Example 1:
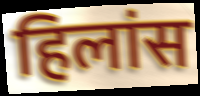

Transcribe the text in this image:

हिलांस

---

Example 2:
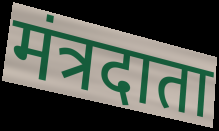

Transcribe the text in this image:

मंत्रदाता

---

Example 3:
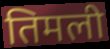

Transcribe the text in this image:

तिमली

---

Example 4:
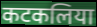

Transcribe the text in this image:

कटकलिया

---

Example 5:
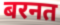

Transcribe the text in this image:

बरनत